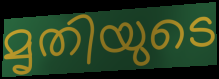
മൃതിയുടെ